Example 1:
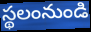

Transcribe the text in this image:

స్థలంనుండి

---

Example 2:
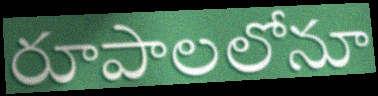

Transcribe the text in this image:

రూపాలలోనూ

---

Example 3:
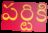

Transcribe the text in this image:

పర్టికి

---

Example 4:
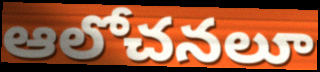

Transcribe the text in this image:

ఆలోచనలూ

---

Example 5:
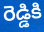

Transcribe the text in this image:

రెడ్డికి